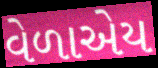
વેળાએય